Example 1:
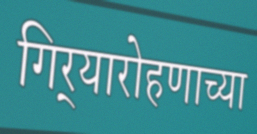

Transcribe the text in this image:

गिर्यारोहणाच्या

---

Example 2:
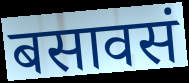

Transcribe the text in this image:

बसावसं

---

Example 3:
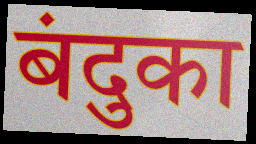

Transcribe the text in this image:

बंदुका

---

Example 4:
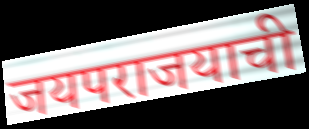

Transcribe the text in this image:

जयपराजयाची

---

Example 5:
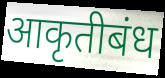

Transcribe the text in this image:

आकृतीबंध